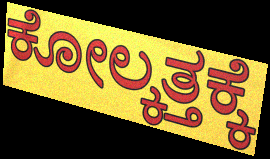
ಕೋಲ್ಕತ್ತಕ್ಕೆ